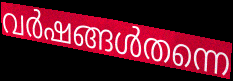
വർഷങ്ങൾതന്നെ